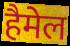
हैमेल